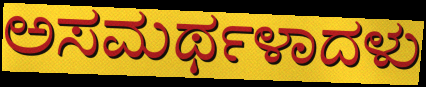
ಅಸಮರ್ಥಳಾದಳು